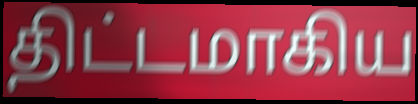
திட்டமாகிய